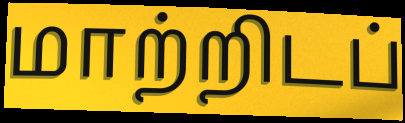
மாற்றிடப்